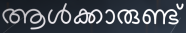
ആൾക്കാരുണ്ട്